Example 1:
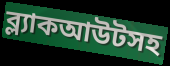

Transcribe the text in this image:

ব্ল্যাকআউটসহ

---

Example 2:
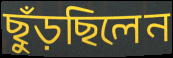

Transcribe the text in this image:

ছুঁড়ছিলেন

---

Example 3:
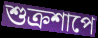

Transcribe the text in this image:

শুক্রশাপে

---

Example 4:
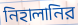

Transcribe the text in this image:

নিহালানির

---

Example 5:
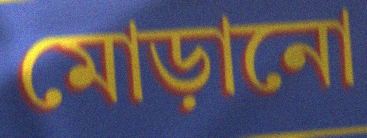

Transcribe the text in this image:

মোড়ানো